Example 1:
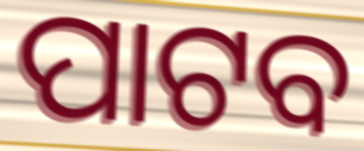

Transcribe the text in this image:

ପାଟବ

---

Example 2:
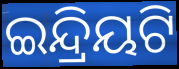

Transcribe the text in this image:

ଇନ୍ଦ୍ରିୟଟି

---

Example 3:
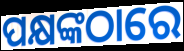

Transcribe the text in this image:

ପକ୍ଷଙ୍କଠାରେ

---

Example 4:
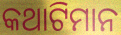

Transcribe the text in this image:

କଥାଟିମାନ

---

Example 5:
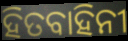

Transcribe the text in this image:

ହିତବାହିନୀ